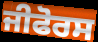
ਜੀਫੋਰਸ